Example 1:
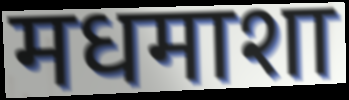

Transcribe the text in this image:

मधमाशा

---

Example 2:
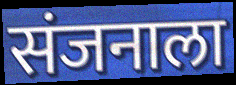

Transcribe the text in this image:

संजनाला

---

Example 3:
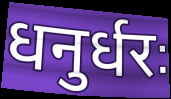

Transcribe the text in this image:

धनुर्धरः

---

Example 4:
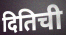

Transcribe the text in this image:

दितिची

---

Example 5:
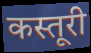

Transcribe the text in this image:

कस्तूरी